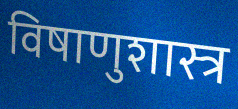
विषाणुशास्त्र